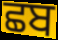
ਛਬ